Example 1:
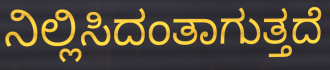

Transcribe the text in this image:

ನಿಲ್ಲಿಸಿದಂತಾಗುತ್ತದೆ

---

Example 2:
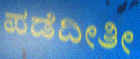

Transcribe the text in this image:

ಪಡೆದೀತೀ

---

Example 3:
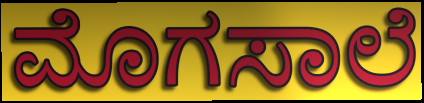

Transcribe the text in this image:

ಮೊಗಸಾಲೆ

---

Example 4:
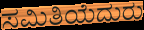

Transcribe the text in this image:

ಸಮಿತಿಯೆದುರು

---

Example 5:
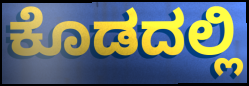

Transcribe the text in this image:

ಕೊಡದಲ್ಲಿ